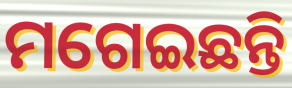
ମଗେଇଛନ୍ତି